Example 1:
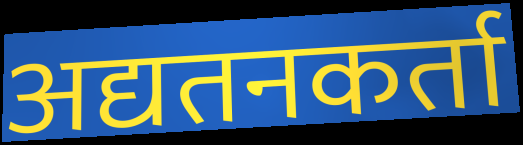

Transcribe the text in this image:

अद्यतनकर्ता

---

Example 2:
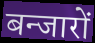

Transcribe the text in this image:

बन्जारों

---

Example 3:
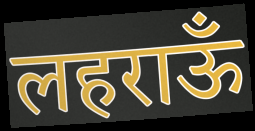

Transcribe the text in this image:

लहराऊँ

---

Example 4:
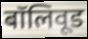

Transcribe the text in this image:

बॉलिवूड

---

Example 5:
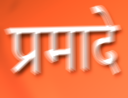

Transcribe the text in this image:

प्रमादे